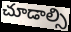
చూడాల్సి